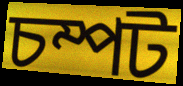
চম্পট